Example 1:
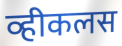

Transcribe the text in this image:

व्हीकलस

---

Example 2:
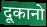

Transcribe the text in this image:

दूकानो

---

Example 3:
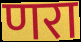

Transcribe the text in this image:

णरा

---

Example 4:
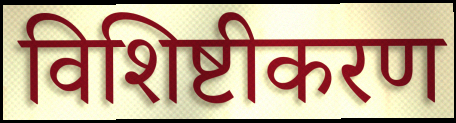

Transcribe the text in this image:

विशिष्टीकरण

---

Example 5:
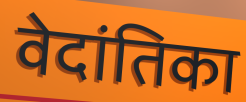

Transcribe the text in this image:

वेदांतिका